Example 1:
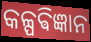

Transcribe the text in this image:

କଳ୍ପଵିଜ୍ଞାନ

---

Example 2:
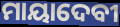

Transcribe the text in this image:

ମାୟାଦେବୀ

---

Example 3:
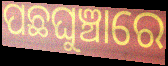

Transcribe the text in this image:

ପଛଘୁଞ୍ଚାରେ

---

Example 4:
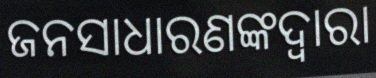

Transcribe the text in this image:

ଜନସାଧାରଣଙ୍କଦ୍ବାରା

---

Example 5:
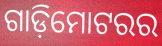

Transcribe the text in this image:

ଗାଡ଼ିମୋଟରର